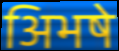
अिभषे